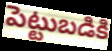
పెట్టుబడికి